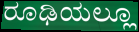
ರೂಢಿಯಲ್ಲೂ